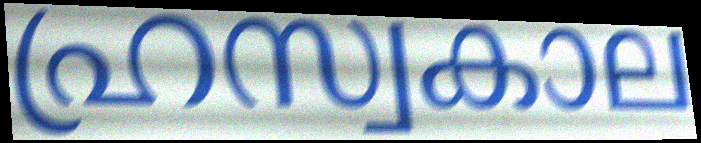
ഹ്രസ്വകാല